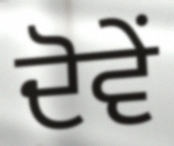
ਦੋਵੇੰ